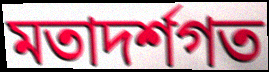
মতাদর্শগত